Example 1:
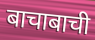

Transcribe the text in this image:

बाचाबाची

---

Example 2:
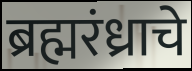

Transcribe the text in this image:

ब्रह्मरंध्राचे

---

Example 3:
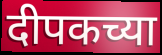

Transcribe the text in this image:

दीपकच्या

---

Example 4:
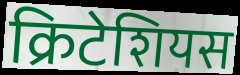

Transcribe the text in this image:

क्रिटेशियस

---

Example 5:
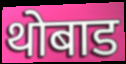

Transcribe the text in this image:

थोबाड